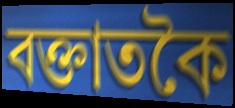
বক্তাতকৈ